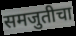
समजुतीचा